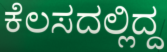
ಕೆಲಸದಲ್ಲಿದ್ದ